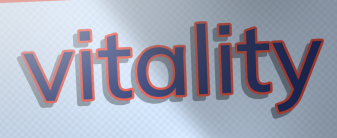
vitality